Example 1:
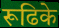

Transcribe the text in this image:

रूढिके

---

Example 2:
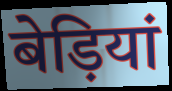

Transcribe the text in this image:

बेड़ियां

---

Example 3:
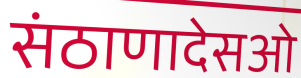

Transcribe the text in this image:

संठाणादेसओ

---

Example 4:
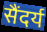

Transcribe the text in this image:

सैंदर्य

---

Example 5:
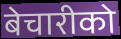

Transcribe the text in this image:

बेचारीको